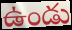
ఉండు